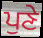
ਪੁਣੇ